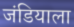
जंडियाला